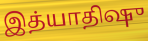
இத்யாதிஷு